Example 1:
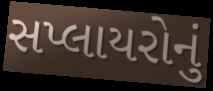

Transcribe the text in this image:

સપ્લાયરોનું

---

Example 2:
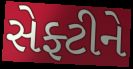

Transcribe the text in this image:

સેફ્ટીને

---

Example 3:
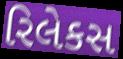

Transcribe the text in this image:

રિલેકસ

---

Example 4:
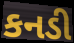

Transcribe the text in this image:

કનડી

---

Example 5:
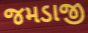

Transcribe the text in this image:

જમડાજી